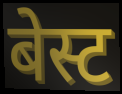
बेस्ट